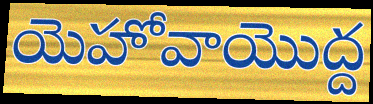
యెహోవాయొద్ద